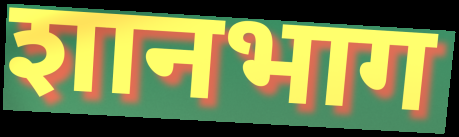
शानभाग